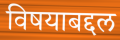
विषयाबद्दल